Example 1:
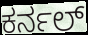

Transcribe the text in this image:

ಕರ್ನಲ್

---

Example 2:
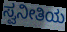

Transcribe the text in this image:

ಸ್ವನೀತಿಯ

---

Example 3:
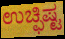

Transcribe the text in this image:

ಉಚ್ಫಿಷ್ಟ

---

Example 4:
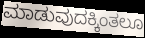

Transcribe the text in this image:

ಮಾಡುವುದಕ್ಕಿಂತಲೂ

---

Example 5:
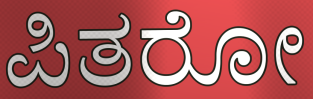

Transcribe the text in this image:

ಪಿತರೋ